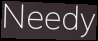
Needy